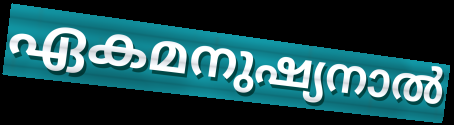
ഏകമനുഷ്യനാൽ